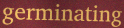
germinating